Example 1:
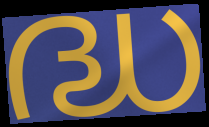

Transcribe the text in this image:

ദ്ധ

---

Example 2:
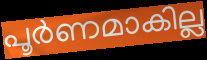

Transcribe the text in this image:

പൂർണമാകില്ല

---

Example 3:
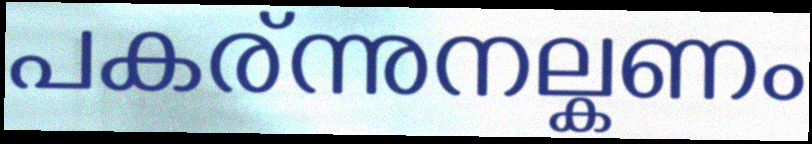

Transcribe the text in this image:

പകര്ന്നുനല്കണം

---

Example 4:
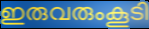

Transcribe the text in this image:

ഇരുവരുംകൂടി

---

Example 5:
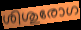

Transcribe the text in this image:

ശിശുരോഗ